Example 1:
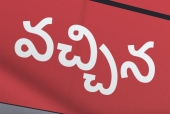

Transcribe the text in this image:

వచ్చిన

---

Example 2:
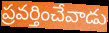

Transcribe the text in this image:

ప్రవర్తించేవాడు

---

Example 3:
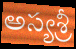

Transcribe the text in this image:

అస్యశ్రీ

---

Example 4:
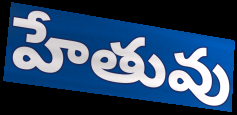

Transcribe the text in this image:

హేతువు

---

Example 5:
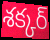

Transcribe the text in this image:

శక్కర్